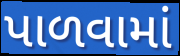
પાળવામાં